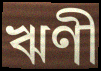
ঋণী